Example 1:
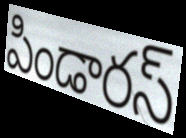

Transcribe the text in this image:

పిండారస్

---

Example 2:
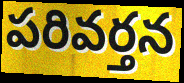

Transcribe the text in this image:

పరివర్తన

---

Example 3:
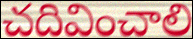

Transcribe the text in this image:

చదివించాలి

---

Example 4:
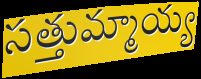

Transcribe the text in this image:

సత్తుమ్మాయ్య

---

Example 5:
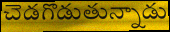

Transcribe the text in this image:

చెడగొడుతున్నాడు